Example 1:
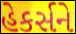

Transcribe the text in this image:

હેકર્સને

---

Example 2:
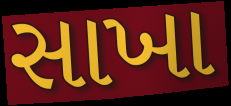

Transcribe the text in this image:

સાખા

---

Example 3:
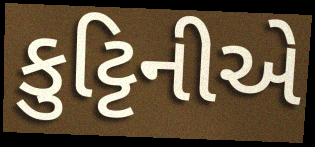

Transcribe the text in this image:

કુટ્ટિનીએ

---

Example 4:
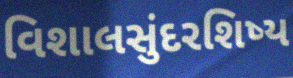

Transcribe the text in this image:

વિશાલસુંદરશિષ્ય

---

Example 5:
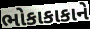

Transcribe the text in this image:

ભોકાકાકાને